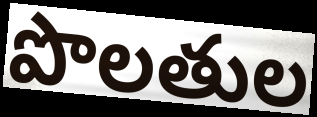
పొలతుల